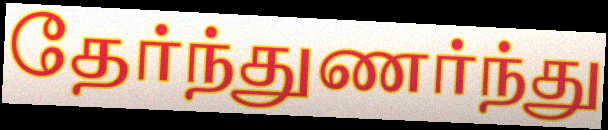
தேர்ந்துணர்ந்து